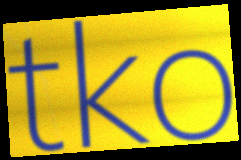
tko